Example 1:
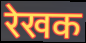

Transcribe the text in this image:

रेखक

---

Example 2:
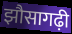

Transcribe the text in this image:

झौसागढ़ी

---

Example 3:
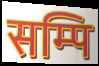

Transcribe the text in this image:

सम्पि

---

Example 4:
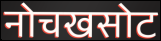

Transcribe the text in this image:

नोचखसोट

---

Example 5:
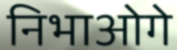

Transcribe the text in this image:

निभाओगे